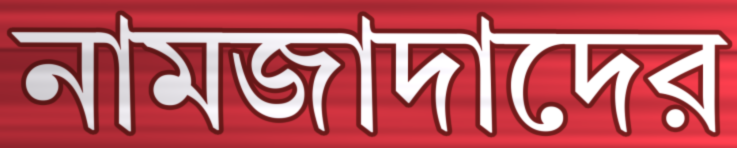
নামজাদাদের